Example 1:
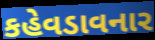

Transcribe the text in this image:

કહેવડાવનાર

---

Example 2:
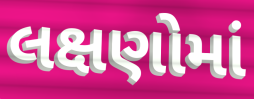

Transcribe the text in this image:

લક્ષણોમાં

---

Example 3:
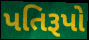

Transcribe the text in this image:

પતિરૂપો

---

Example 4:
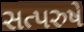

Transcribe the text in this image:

સત્પરુષે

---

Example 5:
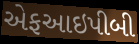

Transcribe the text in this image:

એફઆઇપીબી